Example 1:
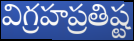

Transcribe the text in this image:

విగ్రహప్రతిష్ట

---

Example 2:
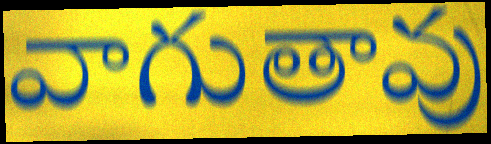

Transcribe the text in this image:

వాగుతావు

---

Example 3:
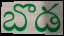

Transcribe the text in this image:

బొడ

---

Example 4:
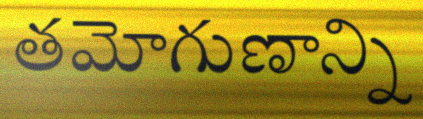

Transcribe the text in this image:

తమోగుణాన్ని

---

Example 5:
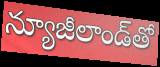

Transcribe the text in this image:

న్యూజీలాండ్‌తో